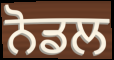
ਨੋਡਲ